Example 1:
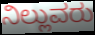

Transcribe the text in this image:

ನಿಲ್ಲುವರು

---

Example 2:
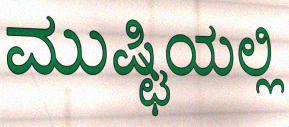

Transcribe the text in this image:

ಮುಷ್ಟಿಯಲ್ಲಿ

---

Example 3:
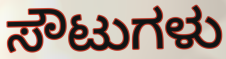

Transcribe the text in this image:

ಸೌಟುಗಳು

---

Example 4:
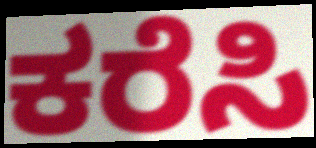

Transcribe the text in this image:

ಕರೆಸಿ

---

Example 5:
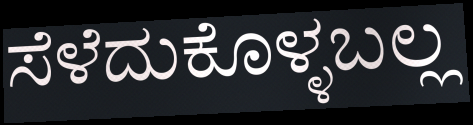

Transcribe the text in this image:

ಸೆಳೆದುಕೊಳ್ಳಬಲ್ಲ